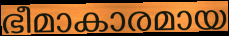
ഭീമാകാരമായ